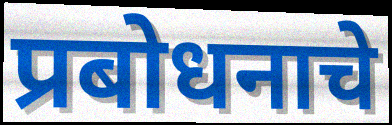
प्रबोधनाचे